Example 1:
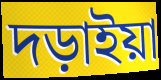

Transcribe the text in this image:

দড়াইয়া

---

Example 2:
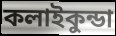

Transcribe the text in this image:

কলাইকুন্ডা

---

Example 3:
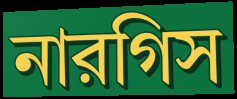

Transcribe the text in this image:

নারগিস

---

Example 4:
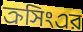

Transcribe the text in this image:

ক্রসিংএর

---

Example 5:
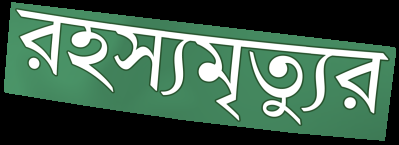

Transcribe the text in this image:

রহস্যমৃত্যুর